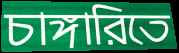
চাঙ্গারিতে